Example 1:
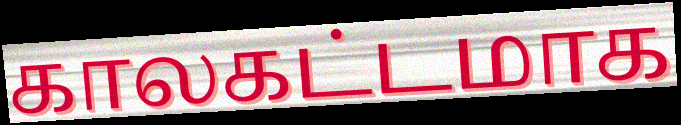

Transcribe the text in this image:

காலகட்டமாக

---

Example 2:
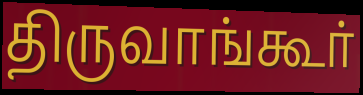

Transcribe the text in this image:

திருவாங்கூர்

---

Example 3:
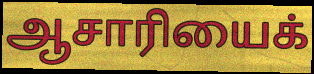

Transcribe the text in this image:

ஆசாரியைக்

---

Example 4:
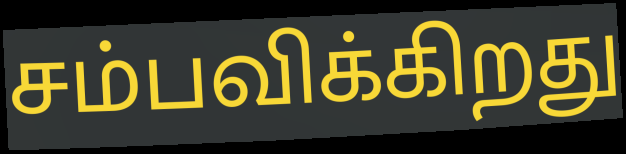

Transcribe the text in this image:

சம்பவிக்கிறது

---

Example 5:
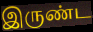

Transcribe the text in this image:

இருண்ட